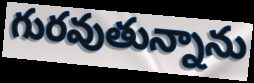
గురవుతున్నాను